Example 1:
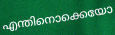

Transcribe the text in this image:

എന്തിനൊക്കെയോ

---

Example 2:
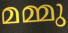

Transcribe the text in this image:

മമ്മു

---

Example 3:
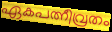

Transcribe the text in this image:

ഏകപത്നീവ്രതം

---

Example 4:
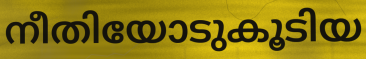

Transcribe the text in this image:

നീതിയോടുകൂടിയ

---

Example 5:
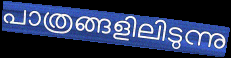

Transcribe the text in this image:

പാത്രങ്ങളിലിടുന്നു